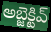
అబ్జెక్టివ్